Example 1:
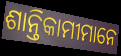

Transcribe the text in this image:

ଶାନ୍ତିକାମୀମାନେ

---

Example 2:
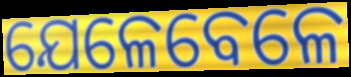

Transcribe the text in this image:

ଯେଳେବେଳେ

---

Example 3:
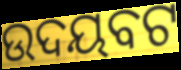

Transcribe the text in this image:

ଉଦୟବଟ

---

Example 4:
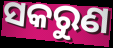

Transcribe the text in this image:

ସକରୁଣ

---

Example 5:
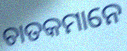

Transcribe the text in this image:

ଚାତକମାନେ